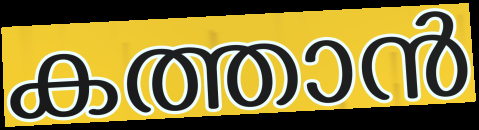
കത്താൻ